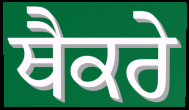
ਥੈਕਰੇ